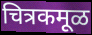
चित्रकमूळ